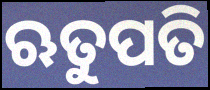
ଋତୁପତି